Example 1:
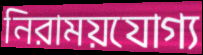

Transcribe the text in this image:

নিরাময়যোগ্য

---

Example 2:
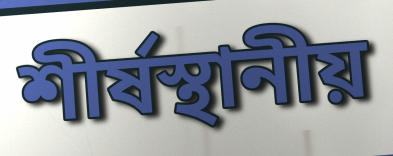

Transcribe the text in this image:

শীর্ষস্থানীয়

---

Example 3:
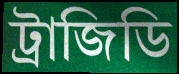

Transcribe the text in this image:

ট্রাজিডি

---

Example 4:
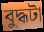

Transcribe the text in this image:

বুদ্ধটা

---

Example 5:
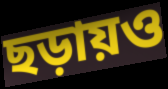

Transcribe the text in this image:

ছড়ায়ও